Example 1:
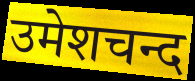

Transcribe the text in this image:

उमेशचन्द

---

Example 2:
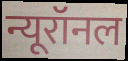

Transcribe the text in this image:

न्यूरॉनल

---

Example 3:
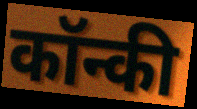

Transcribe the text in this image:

कॉन्की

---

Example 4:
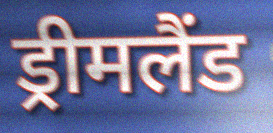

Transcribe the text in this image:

ड्रीमलैंड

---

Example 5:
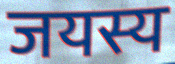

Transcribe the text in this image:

जयस्य